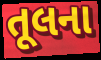
તૂલના